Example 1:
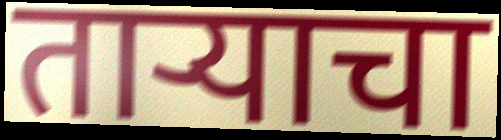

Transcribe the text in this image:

ताऱ्याचा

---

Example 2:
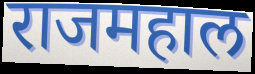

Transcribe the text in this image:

राजमहाल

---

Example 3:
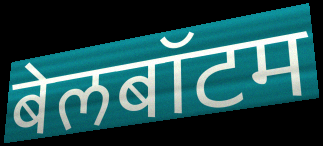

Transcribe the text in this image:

बेलबॉटम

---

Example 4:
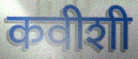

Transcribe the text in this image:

कवीशी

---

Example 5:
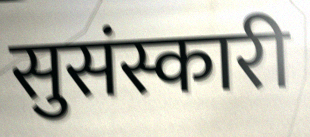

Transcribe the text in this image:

सुसंस्कारी